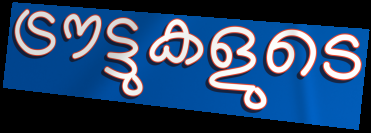
ട്രൗട്ടുകളുടെ